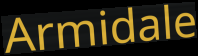
Armidale